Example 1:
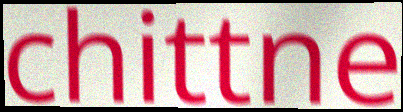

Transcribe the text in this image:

chittne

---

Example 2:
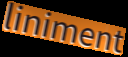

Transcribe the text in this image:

liniment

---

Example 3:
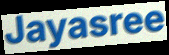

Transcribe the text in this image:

Jayasree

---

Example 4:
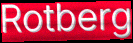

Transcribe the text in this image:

Rotberg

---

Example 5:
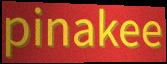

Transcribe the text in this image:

pinakee